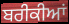
ਬਰੀਕੀਆਂ